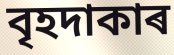
বৃহদাকাৰ